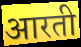
आरती